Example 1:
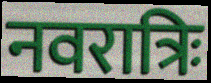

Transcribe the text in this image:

नवरात्रिः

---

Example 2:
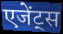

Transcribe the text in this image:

एजेंट्स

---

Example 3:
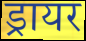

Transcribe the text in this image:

ड्रायर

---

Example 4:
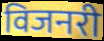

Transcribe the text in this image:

विजनरी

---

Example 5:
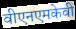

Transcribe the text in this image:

वीएनएमकेवी